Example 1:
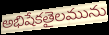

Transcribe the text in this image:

అభిషేకతైలమును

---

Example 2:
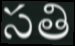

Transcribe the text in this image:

సతి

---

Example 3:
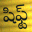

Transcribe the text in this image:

షిఫ్ట్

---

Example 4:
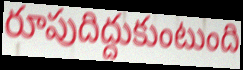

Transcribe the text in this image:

రూపుదిద్దుకుంటుంది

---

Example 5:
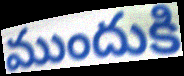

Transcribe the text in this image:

ముందుకి